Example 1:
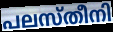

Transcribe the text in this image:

പലസ്തീനി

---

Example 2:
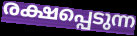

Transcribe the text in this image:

രക്ഷപ്പെടുന്ന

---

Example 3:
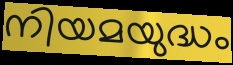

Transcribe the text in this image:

നിയമയുദ്ധം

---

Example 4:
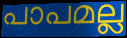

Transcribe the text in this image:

പാപമല്ല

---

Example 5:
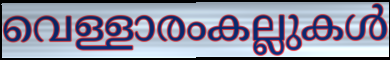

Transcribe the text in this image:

വെള്ളാരംകല്ലുകൾ